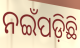
ନଇଁପଡ଼ିଛି